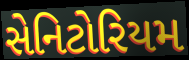
સેનિટોરિયમ